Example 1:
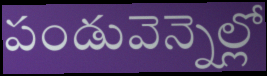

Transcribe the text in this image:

పండువెన్నెల్లో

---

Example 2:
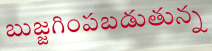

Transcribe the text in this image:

బుజ్జగింపబడుతున్న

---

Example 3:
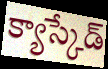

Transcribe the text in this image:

క్యాస్కేడ్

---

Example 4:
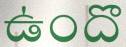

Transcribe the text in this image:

ఉందొ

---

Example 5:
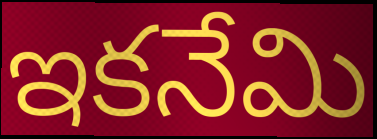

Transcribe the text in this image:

ఇకనేమి